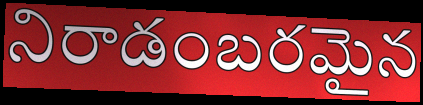
నిరాడంబరమైన